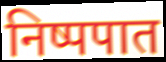
निष्पपात